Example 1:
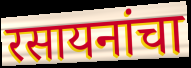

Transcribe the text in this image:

रसायनांचा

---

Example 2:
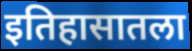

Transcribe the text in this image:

इतिहासातला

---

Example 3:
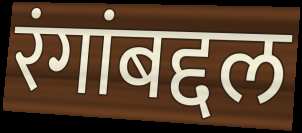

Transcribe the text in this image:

रंगांबद्दल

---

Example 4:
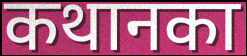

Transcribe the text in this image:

कथानका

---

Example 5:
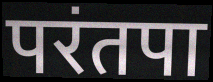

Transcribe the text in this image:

परंतपा